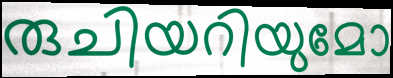
രുചിയറിയുമോ